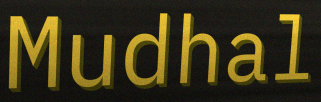
Mudhal